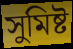
সুমিষ্ট